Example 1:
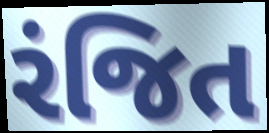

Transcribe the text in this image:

રંજિત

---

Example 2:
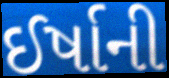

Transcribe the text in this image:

ઈર્ષાની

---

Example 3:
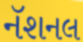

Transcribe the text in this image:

નૅશનલ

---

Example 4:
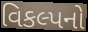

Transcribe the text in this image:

વિકલ્પનો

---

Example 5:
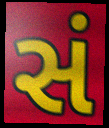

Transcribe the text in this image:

સં